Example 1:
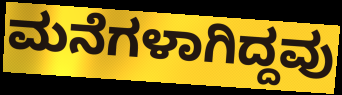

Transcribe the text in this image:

ಮನೆಗಳಾಗಿದ್ದವು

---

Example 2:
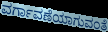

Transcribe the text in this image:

ವರ್ಗಾವಣೆಯಾಗುವಂತೆ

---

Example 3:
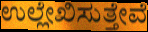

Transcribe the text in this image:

ಉಲ್ಲೇಖಿಸುತ್ತೇವೆ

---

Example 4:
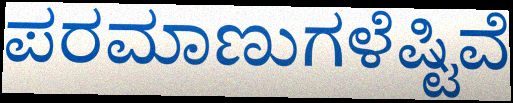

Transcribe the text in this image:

ಪರಮಾಣುಗಳೆಷ್ಟಿವೆ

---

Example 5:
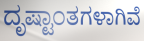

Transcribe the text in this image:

ದೃಷ್ಟಾಂತಗಳಾಗಿವೆ